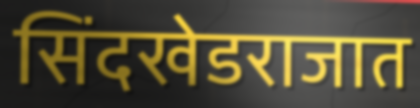
सिंदखेडराजात